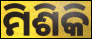
ମିଶିକି